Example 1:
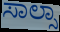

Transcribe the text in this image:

ಸಾಲ್ಸಾ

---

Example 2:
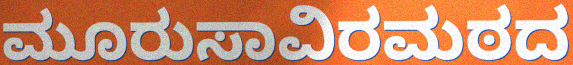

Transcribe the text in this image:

ಮೂರುಸಾವಿರಮಠದ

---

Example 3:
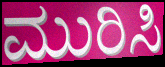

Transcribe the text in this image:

ಮುರಿಸಿ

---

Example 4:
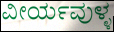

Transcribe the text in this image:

ವೀರ್ಯವುಳ್ಳ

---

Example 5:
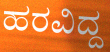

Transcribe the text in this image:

ಹರವಿದ್ದ